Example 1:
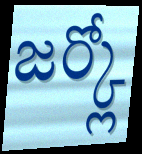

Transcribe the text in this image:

జర్క్లో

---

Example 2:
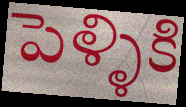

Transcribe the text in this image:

పెళ్ళికి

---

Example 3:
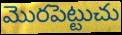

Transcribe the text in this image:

మొరపెట్టుచు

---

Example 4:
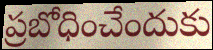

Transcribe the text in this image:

ప్రబోధించేందుకు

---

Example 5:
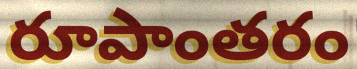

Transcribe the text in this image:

రూపాంతరం